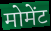
मोमेंट